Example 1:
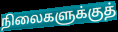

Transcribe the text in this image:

நிலைகளுக்குத்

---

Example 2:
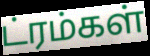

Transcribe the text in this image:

ட்ரம்கள்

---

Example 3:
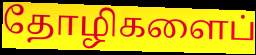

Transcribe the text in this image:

தோழிகளைப்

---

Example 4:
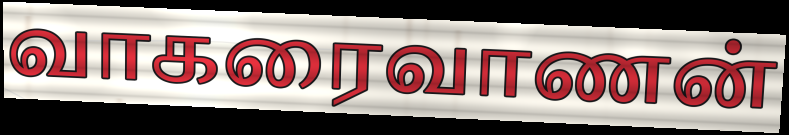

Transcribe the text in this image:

வாகரைவாணன்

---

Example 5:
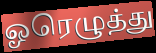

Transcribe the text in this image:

ஓரெழுத்து